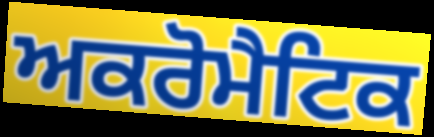
ਅਕਰੋਮੈਟਿਕ